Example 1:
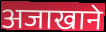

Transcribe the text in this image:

अजाखाने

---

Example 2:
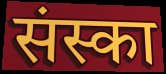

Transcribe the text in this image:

संस्का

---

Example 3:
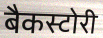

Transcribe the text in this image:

बैकस्टोरी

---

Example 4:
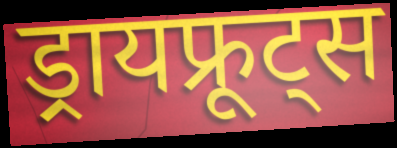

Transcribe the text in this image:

ड्रायफ्रूट्स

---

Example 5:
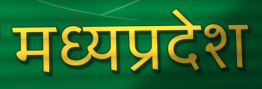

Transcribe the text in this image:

मध्‍यप्रदेश